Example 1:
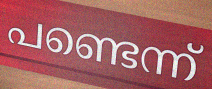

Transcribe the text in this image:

പണ്ടെന്ന്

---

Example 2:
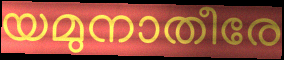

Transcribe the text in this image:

യമുനാതീരേ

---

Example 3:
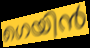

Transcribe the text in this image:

ഗെയിൻ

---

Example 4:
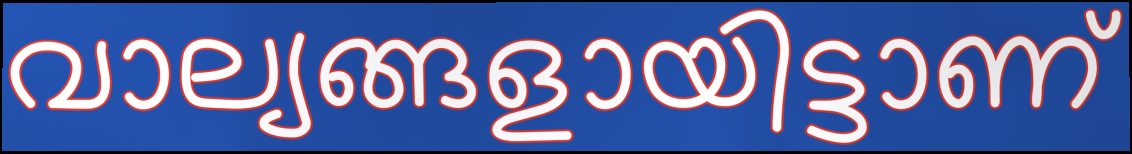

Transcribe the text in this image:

വാല്യങ്ങളായിട്ടാണ്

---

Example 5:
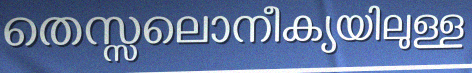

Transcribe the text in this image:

തെസ്സലൊനീക്യയിലുള്ള